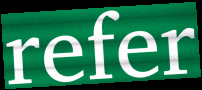
refer